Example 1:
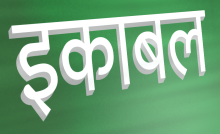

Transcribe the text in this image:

इकाबल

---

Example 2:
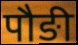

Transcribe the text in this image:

पौङी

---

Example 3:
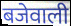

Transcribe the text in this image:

बजेवाली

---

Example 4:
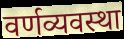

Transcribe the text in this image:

वर्णव्यवस्था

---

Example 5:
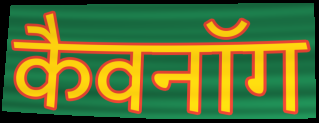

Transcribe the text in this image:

कैवनॉग